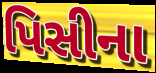
પિસીના